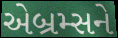
એબ્રમ્સને